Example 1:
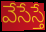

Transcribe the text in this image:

వేసేస్తే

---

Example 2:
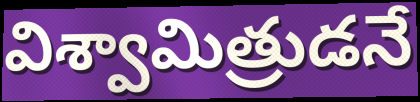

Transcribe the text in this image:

విశ్వామిత్రుడనే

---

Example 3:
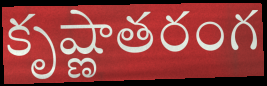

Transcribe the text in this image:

కృష్ణాతరంగ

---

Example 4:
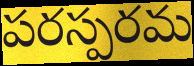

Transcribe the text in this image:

పరస్పరమ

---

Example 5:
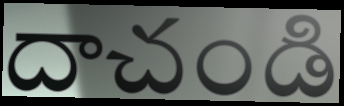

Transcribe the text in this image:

దాచండి